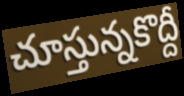
చూస్తున్నకొద్దీ